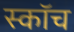
स्कॉच